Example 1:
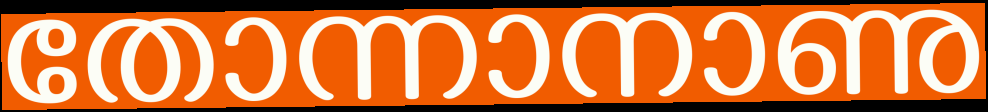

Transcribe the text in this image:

തോന്നാനാണു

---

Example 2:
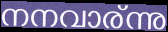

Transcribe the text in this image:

നനവാര്ന്നു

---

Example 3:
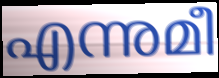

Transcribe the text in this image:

എന്നുമീ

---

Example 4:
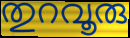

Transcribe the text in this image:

തുറവൂരു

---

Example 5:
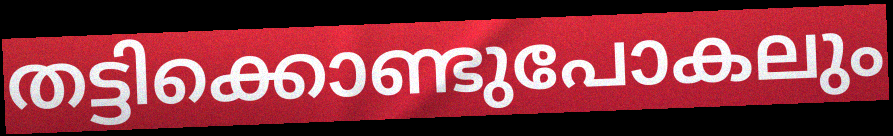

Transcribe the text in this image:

തട്ടിക്കൊണ്ടുപോകലും